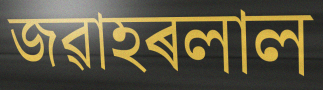
জৱাহৰলাল